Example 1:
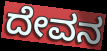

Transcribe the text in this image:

ದೇವನ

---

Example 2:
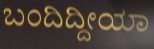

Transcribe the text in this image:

ಬಂದಿದ್ದೀಯಾ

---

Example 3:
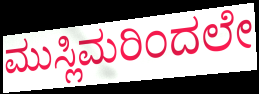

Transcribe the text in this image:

ಮುಸ್ಲಿಮರಿಂದಲೇ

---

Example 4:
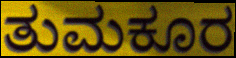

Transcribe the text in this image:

ತುಮಕೂರ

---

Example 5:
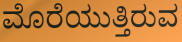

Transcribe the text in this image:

ಮೊರೆಯುತ್ತಿರುವ